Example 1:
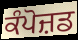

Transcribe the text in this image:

ਕੰਪੋਜ਼ਡ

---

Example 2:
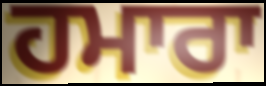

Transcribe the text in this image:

ਹਮਾਰਾ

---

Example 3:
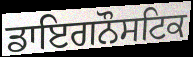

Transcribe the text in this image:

ਡਾਇਗਨੌਸਟਿਕ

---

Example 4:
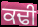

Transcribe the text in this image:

ਕਢੀ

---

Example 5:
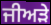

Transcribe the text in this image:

ਜੀਅੜੇ